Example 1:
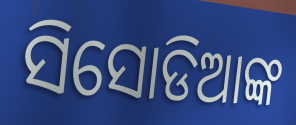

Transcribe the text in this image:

ସିସୋଡିଆଙ୍କ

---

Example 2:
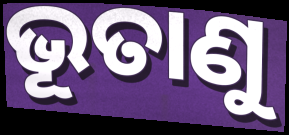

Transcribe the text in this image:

ଭୂତାଣୁ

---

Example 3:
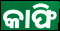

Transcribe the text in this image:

କାଫି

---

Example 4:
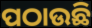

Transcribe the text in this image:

ପଠାଉଛି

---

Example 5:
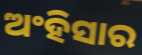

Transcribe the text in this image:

ଅଂହିସାର